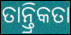
ତାନ୍ତ୍ରିକତା